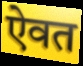
ऐवत